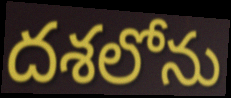
దశలోను